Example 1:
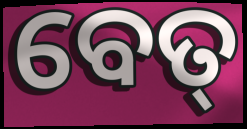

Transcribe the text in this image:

ବେତ୍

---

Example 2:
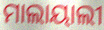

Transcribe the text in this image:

ମାଲାୟାଲୀ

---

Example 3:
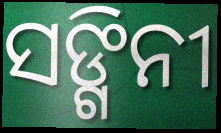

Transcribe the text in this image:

ସଙ୍ଗିନୀ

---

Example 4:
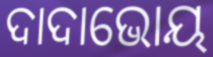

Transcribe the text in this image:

ଦାଦାଭୋୟ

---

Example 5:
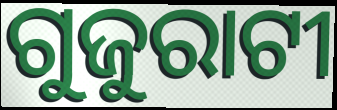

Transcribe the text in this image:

ଗୁଜୁରାଟୀ